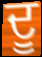
ਦੂ